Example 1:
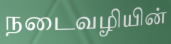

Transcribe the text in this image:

நடைவழியின்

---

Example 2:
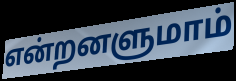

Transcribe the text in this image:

என்றனளுமாம்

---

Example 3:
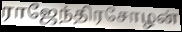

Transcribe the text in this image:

ராஜேந்திரசோழன்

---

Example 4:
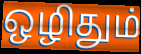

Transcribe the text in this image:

ஒழிதும்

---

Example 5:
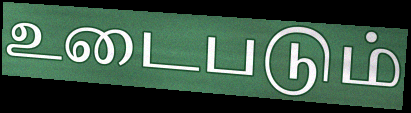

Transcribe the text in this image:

உடைபடும்